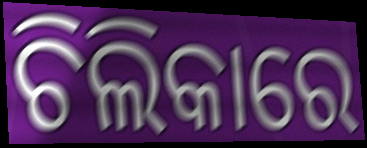
ଚିଲିକାରେ